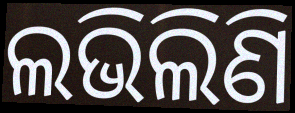
ଲଭିଲିଣି